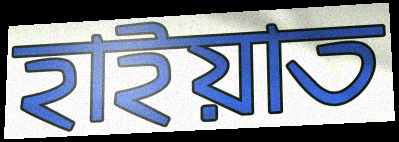
হাইয়াত